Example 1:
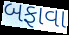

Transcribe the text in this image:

બફાવા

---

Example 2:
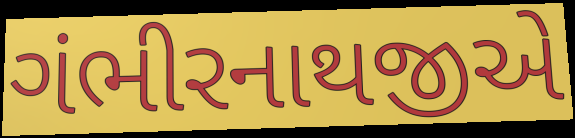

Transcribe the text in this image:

ગંભીરનાથજીએ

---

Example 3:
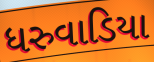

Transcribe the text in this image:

ધરુવાડિયા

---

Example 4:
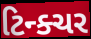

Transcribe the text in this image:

ટિન્ક્ચર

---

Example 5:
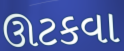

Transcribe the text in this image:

ઊટકવા